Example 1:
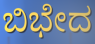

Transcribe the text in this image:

ಬಿಭೇದ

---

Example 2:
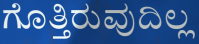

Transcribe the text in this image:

ಗೊತ್ತಿರುವುದಿಲ್ಲ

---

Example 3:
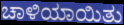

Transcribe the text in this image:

ಚಾಳಿಯಾಯಿತು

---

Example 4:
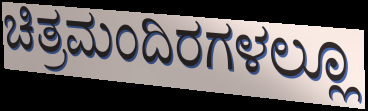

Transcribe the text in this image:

ಚಿತ್ರಮಂದಿರಗಳಲ್ಲೂ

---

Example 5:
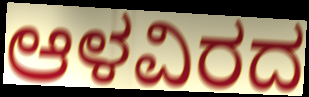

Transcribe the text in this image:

ಆಳವಿರದ